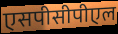
एसपीसीपीएल